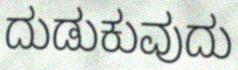
ದುಡುಕುವುದು